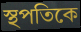
স্থপতিকে